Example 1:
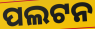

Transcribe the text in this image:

ପଲଟନ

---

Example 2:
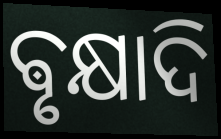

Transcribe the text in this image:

ଵୃକ୍ଷାଦି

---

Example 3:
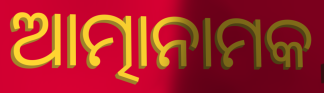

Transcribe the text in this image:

ଆତ୍ମାନାମକ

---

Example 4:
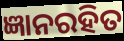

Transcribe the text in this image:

ଜ୍ଞାନରହିତ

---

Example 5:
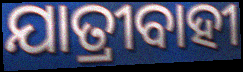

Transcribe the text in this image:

ଯାତ୍ରୀବାହୀ